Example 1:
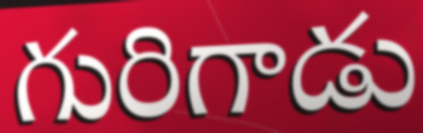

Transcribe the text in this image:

గురిగాడు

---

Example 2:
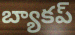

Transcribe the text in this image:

బ్యాకప్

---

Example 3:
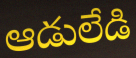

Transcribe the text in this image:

ఆడులేడి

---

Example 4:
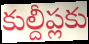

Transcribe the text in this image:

కుల్దీప్లకు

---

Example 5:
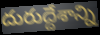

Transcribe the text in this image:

దురుద్దేశాన్ని